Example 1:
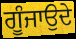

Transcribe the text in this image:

ਗੂੰਜਾਉਦੇ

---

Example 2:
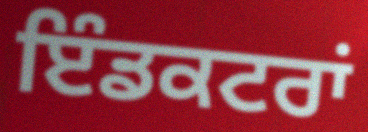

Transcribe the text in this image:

ਇੰਡਕਟਰਾਂ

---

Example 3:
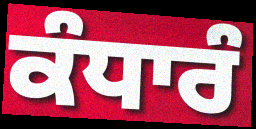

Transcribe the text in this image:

ਕੰਧਾਰੰ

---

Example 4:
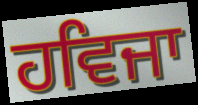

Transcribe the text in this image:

ਹਵਿਜਾ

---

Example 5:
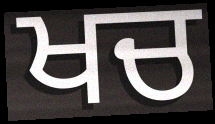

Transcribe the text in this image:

ਖਚ